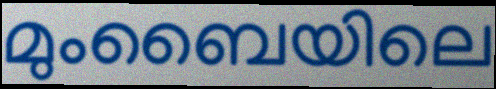
മുംബൈയിലെ